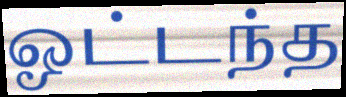
ஓட்டந்த